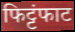
फिट्टंफाट